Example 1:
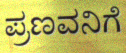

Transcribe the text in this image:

ಪ್ರಣವನಿಗೆ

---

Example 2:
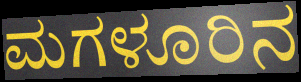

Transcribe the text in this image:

ಮಗಳೂರಿನ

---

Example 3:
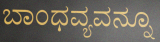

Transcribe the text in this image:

ಬಾಂಧವ್ಯವನ್ನೂ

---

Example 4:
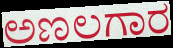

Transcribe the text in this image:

ಅಣಲಗಾರ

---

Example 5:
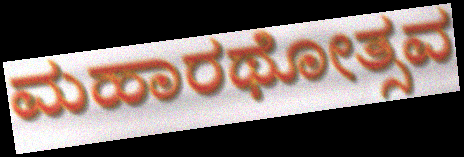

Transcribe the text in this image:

ಮಹಾರಥೋತ್ಸವ